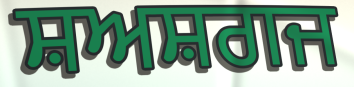
ਸ਼ਅਸ਼ਗਜ